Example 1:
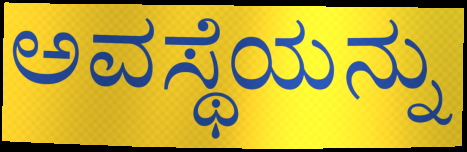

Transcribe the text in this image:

ಅವಸ್ಥೆಯನ್ನು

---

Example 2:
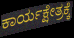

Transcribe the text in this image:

ಕಾರ್ಯಕ್ಷೇತ್ರಕ್ಕೆ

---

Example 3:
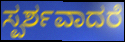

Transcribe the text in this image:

ಸ್ಪರ್ಶವಾದರೆ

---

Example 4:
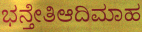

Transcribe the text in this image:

ಭನ್ತೇತಿಆದಿಮಾಹ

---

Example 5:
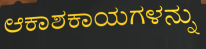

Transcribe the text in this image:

ಆಕಾಶಕಾಯಗಳನ್ನು